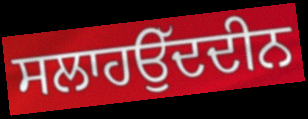
ਸਲਾਹਉੱਦਦੀਨ